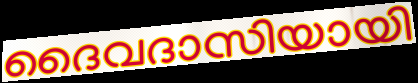
ദൈവദാസിയായി